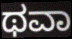
ಥವಾ